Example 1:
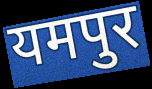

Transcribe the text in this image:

यमपुर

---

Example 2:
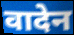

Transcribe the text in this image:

वादेन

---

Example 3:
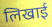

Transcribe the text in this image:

लिखाई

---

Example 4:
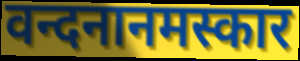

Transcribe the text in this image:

वन्दनानमस्कार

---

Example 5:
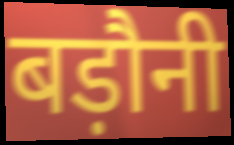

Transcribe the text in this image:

बड़ौनी